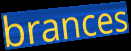
brances